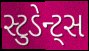
સ્ટુડેન્ટ્સ